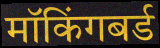
मॉकिंगबर्ड